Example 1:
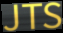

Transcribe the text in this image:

JTS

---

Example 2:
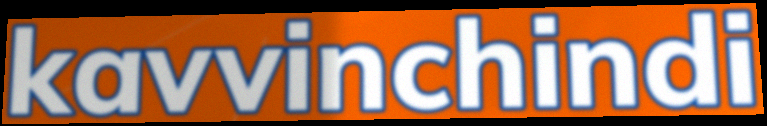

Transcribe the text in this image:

kavvinchindi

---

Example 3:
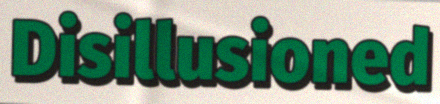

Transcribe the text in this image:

Disillusioned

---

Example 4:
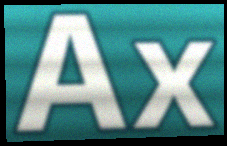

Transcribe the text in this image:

Ax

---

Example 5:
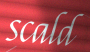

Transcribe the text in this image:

scald